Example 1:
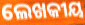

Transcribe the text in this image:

ଲେଖକୀୟ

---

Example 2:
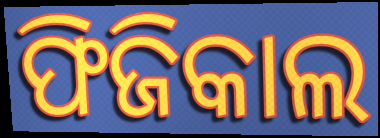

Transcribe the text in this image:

ଫିଜିକାଲ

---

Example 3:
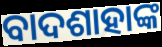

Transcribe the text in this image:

ବାଦଶାହାଙ୍କ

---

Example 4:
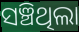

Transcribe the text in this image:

ସଞ୍ଚିଥିଲା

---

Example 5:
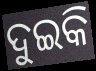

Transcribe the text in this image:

ଦୁଇକି